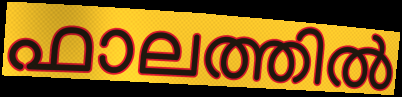
ഫാലത്തിൽ